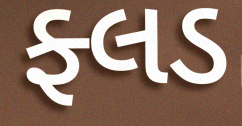
ફ્લડ